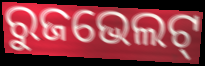
ରୁଜଭେଲଟ୍